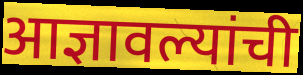
आज्ञावल्यांची